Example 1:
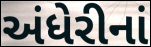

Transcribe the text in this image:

અંધેરીનાં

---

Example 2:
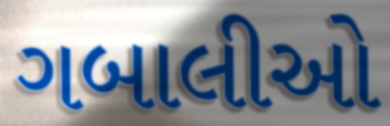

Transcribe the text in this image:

ગબાલીઓ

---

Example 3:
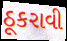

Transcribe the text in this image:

ઠૂકરાવી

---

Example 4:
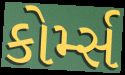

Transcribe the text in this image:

કોર્મ્સ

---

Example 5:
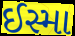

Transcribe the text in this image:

ઈસ્મા